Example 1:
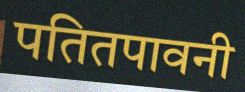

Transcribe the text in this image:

पतितपावनी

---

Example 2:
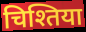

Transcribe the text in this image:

चिश्तिया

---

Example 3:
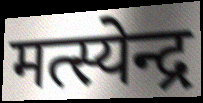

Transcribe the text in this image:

मत्स्येन्द्र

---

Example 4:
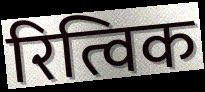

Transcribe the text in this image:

रित्विक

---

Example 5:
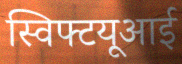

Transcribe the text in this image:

स्विफ्टयूआई